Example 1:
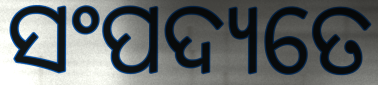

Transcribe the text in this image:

ସଂପଦ୍ୟତେ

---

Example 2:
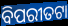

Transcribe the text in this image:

ବିପରୀତଟା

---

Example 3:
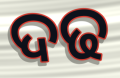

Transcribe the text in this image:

ଦଢ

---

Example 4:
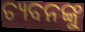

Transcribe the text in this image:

ଚ୍ୟବନଙ୍କୁ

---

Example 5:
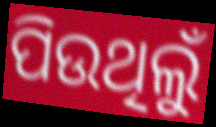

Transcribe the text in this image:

ପିଉଥିଲୁଁ